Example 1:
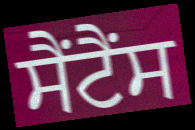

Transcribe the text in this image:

ਸੈਂਟੈਂਸ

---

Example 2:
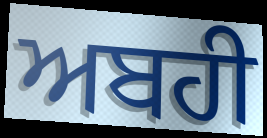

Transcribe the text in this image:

ਅਬਹੀ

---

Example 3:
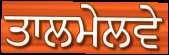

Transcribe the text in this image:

ਤਾਲਮੇਲਵੇ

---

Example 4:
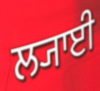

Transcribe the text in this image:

ਲ੍ਯਾਈ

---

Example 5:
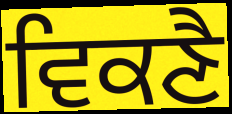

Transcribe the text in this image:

ਵਿਕਣੈ